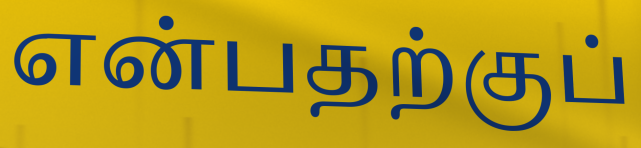
என்பதற்குப்